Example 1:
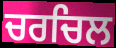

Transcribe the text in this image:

ਚਰਚਿਲ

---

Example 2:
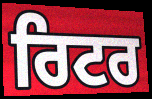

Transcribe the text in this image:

ਰਿਟਰ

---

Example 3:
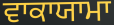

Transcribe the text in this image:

ਵਾਕਾਯਾਮਾ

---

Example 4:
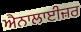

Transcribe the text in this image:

ਐਨਾਲਾਈਜ਼ਰ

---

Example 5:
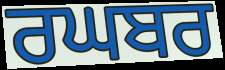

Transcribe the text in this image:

ਰਘਬਰ